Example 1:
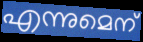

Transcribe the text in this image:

എന്നുമെന്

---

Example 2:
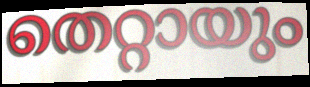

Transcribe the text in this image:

തെറ്റായും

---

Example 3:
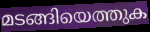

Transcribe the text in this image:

മടങ്ങിയെത്തുക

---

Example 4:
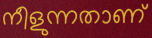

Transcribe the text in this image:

നീളുന്നതാണ്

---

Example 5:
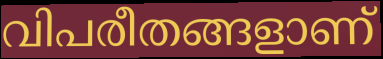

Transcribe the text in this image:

വിപരീതങ്ങളാണ്